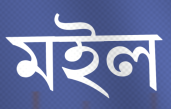
মইল